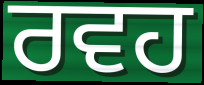
ਰਵਹ